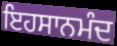
ਇਹਸਾਨਮੰਦ